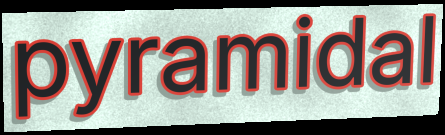
pyramidal